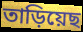
তাড়িয়েছ